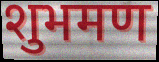
शुभमण